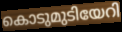
കൊടുമുടിയേറി